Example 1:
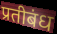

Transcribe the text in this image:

प्रतीबंध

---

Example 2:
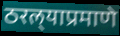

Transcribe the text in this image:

ठरल्याप्रमाणे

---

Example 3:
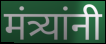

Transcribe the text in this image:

मंत्र्यांनी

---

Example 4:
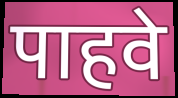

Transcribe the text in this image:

पाहवे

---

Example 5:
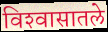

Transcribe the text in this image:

विश्वासातले